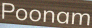
Poonam